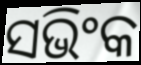
ସଭିଂକ